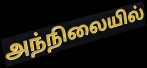
அந்நிலையில்